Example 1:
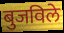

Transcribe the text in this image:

बुजविले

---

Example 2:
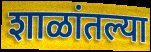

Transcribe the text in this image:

शाळांतल्या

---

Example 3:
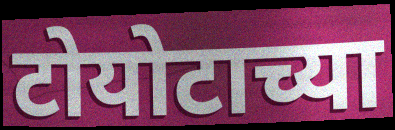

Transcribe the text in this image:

टोयोटाच्या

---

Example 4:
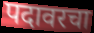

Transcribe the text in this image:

पदावरचा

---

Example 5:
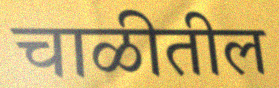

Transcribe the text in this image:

चाळीतील